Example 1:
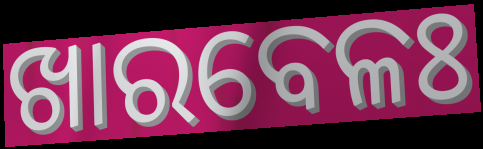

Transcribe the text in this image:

ଖାରବେଳଃ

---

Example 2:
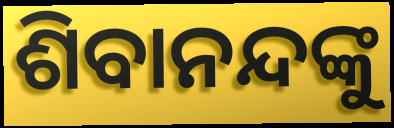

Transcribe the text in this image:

ଶିବାନନ୍ଦଙ୍କୁ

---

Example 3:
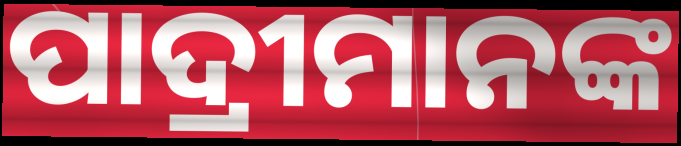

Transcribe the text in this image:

ପାଦ୍ରୀମାନଙ୍କ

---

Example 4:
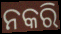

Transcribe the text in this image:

ନକରି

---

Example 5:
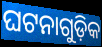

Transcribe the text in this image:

ଘଟନାଗୁଡ଼ିକ